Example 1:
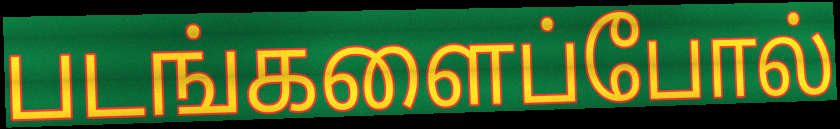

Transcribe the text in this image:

படங்களைப்போல்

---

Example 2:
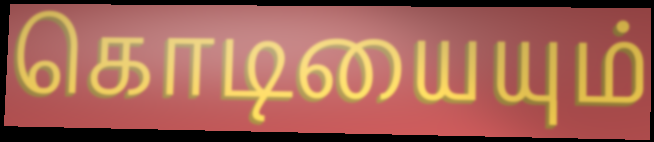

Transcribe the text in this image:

கொடியையும்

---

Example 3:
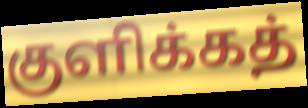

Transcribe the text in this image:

குளிக்கத்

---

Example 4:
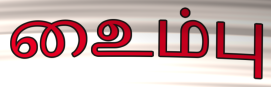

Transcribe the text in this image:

உைம்பு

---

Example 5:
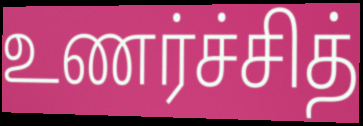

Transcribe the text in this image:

உணர்ச்சித்